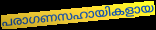
പരാഗണസഹായികളായ